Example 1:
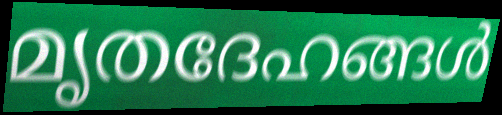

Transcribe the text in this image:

മൃതദേഹങ്ങൾ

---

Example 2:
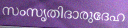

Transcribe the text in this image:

സംസൃതിദാരുദേഹ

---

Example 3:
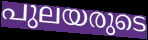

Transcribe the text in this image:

പുലയരുടെ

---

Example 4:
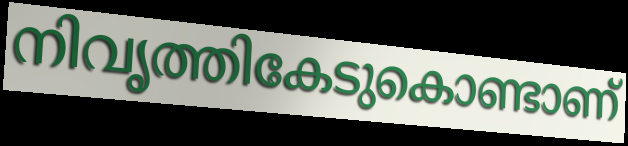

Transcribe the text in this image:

നിവൃത്തികേടുകൊണ്ടാണ്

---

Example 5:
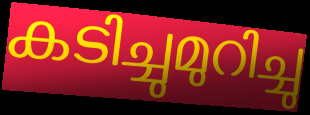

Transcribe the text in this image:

കടിച്ചുമുറിച്ചു